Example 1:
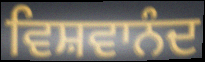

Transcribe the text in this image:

ਵਿਸ਼ਵਾਨੰਦ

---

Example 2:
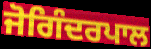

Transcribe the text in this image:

ਜੋਗਿੰਦਰਪਾਲ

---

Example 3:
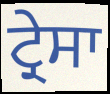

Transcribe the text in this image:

ਟ੍ਰੇਸਾ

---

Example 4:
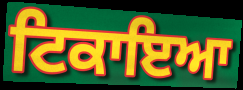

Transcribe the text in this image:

ਟਿਕਾਇਆ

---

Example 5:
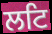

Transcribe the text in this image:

ਲਟਿ